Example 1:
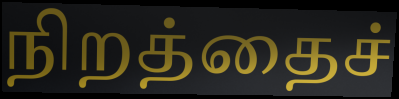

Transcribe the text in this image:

நிறத்தைச்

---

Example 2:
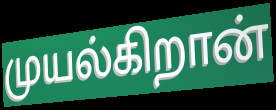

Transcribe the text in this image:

முயல்கிறான்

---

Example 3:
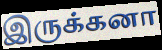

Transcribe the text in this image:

இருக்கனா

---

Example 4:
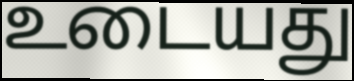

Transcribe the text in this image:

உடையது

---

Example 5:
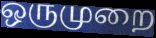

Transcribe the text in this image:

ஒருமுறை